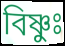
বিষ্ণুঃ